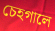
চেহগালে